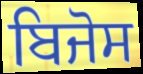
ਬਿਜੋਸ